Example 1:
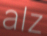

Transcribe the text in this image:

alz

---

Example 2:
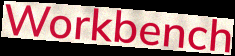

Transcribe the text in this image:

Workbench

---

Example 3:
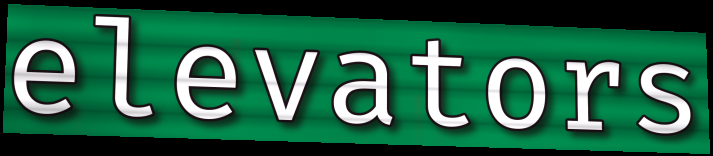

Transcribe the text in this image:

elevators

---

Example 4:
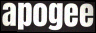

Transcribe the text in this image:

apogee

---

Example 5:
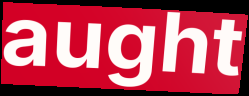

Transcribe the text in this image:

aught